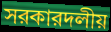
সরকারদলীয়